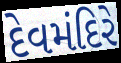
દેવમંદિરે